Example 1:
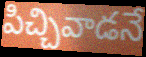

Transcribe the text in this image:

పిచ్చివాడనే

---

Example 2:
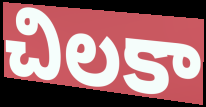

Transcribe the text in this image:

చిలకా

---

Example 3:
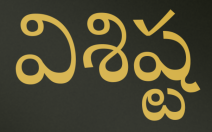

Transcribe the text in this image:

విశిష్ట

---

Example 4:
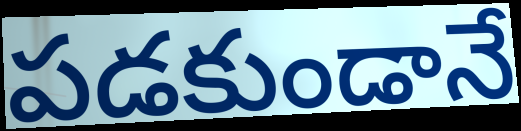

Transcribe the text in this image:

పడకుండానే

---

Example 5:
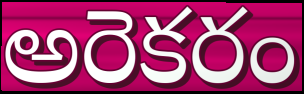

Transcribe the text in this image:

అరెకరం